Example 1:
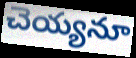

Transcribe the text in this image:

చెయ్యనూ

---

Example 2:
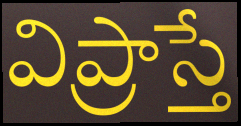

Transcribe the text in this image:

విప్రాస్తే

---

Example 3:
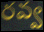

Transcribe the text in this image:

రవ్వ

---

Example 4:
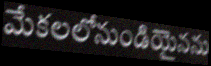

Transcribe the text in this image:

మేకలలోనుండియైనను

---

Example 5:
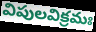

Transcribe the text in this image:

విపులవిక్రమః